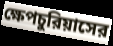
ক্ষেপচুরিয়াসের